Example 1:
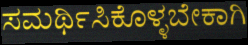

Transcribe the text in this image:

ಸಮರ್ಥಿಸಿಕೊಳ್ಳಬೇಕಾಗಿ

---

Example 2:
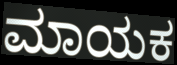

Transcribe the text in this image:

ಮಾಯಕ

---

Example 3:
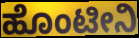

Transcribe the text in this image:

ಹೊಂಟೀನಿ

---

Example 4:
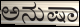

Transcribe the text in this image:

ಅನುಷಾ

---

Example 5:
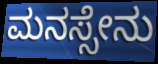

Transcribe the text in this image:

ಮನಸ್ಸೇನು